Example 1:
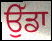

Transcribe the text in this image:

ਉੱਡਾ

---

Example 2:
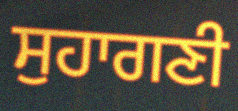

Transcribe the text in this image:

ਸੁਹਾਗਣੀ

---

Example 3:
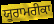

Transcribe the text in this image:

ਯੂਰਾਮਰੀਕਾ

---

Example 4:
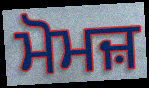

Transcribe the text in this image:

ਮੋਮਜ਼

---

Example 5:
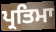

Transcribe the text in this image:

ਪ੍ਰਤਿਮਾ